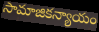
సామాజికన్యాయం